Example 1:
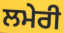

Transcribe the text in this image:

ਲਮੇਰੀ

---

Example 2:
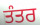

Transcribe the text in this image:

ਤੰਤਰ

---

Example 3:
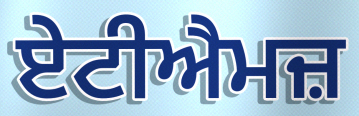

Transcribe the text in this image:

ਏਟੀਐਮਜ਼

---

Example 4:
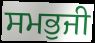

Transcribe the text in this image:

ਸਮਭੁਜੀ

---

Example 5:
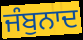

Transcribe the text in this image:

ਜੰਬੁਨਾਦ